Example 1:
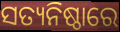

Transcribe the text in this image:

ସତ୍ୟନିଷ୍ଠାରେ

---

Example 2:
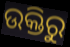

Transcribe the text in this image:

ଉକ୍ତିରୁ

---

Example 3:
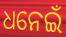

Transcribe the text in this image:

ଧନେଇଁ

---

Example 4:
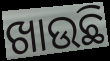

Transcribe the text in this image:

ଖାଉଛି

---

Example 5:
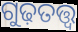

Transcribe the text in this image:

ଗୁଢ଼ତତ୍ତ୍ୱ